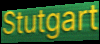
Stutgart